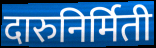
दारुनिर्मिती